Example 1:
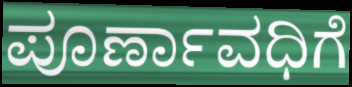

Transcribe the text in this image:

ಪೂರ್ಣಾವಧಿಗೆ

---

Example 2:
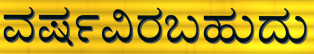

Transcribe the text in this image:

ವರ್ಷವಿರಬಹುದು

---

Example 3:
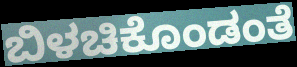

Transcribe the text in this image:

ಬಿಳಚಿಕೊಂಡಂತೆ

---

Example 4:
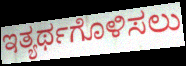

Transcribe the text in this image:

ಇತ್ಯರ್ಥಗೊಳಿಸಲು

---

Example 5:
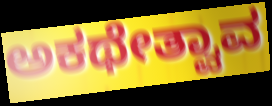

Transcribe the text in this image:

ಅಕಥೇತ್ವಾವ